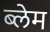
ब्लेम